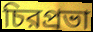
চিরপ্রভা